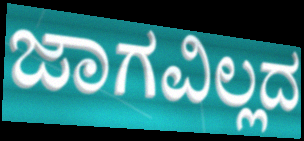
ಜಾಗವಿಲ್ಲದ